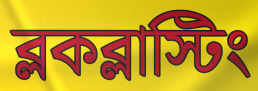
ব্লকব্লাস্টিং